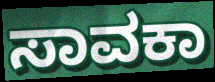
ಸಾವಕಾ